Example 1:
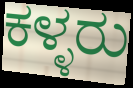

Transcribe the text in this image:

ಕಳ್ಳರು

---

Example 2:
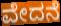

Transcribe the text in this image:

ವೇದನೆ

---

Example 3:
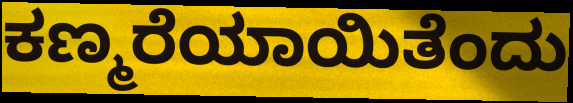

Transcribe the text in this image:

ಕಣ್ಮರೆಯಾಯಿತೆಂದು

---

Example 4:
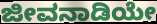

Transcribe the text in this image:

ಜೀವನಾಡಿಯೇ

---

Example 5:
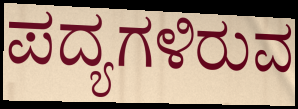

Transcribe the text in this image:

ಪದ್ಯಗಳಿರುವ